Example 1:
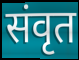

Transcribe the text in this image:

संवृत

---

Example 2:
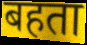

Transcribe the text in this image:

बहता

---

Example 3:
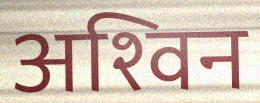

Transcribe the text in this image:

अश्विन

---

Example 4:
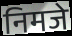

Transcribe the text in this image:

निमजे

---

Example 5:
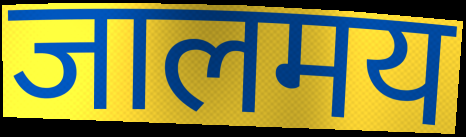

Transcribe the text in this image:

जालमय